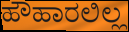
ಹೌಹಾರಲಿಲ್ಲ